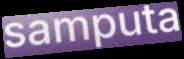
samputa